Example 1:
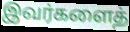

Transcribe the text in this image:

இவர்களைத்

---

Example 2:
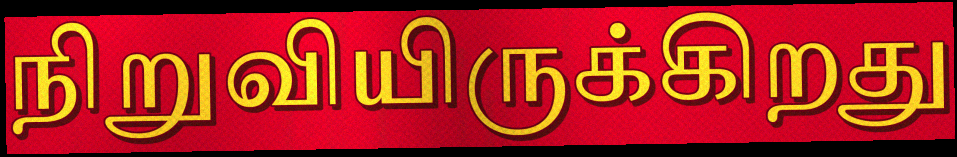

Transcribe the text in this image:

நிறுவியிருக்கிறது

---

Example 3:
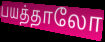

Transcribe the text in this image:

பயத்தாலோ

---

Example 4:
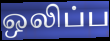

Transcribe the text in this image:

ஒலிப்ப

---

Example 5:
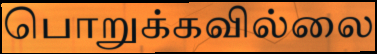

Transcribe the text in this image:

பொறுக்கவில்லை